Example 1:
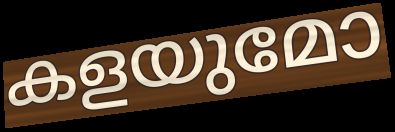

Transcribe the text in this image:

കളയുമോ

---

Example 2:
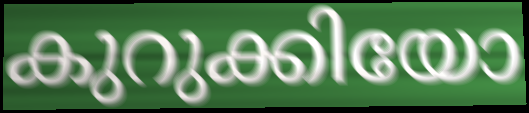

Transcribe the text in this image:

കുറുക്കിയോ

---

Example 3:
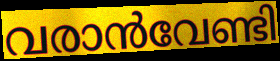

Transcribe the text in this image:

വരാൻവേണ്ടി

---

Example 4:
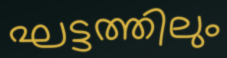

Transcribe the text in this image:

ഘട്ടത്തിലും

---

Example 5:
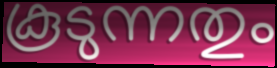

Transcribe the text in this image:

കൂടുന്നതും